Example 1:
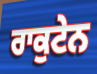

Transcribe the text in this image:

ਰਾਕੁਟੇਨ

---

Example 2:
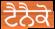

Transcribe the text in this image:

ਟੈਨੈਕੋ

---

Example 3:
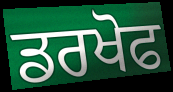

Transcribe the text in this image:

ਡਰਖੋਫ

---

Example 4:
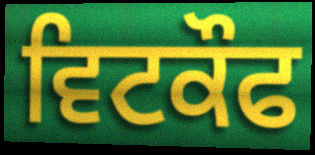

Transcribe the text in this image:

ਵਿਟਕੌਫ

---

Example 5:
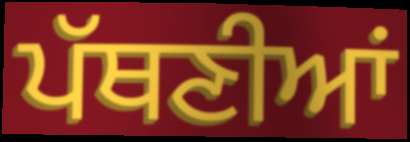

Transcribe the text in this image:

ਪੱਥਣੀਆਂ